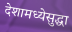
देशामध्येसुद्धा